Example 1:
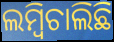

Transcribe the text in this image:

ଲମ୍ବିଚାଲିଛି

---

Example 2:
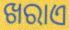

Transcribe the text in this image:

ଖରାଏ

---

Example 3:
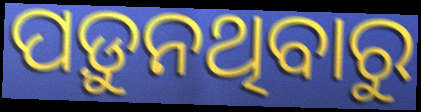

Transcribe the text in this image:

ପଡ଼ୁନଥିବାରୁ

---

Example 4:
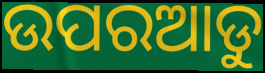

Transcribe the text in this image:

ଉପରଆଡୁ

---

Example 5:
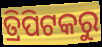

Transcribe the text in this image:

ତ୍ରିପିଟକରୁ